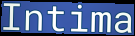
Intima